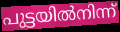
പുട്ടയിൽനിന്ന്